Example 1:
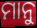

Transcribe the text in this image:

ମାନୁ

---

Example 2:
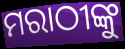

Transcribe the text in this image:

ମରାଠୀଙ୍କୁ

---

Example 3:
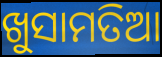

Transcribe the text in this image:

ଖୁସାମତିଆ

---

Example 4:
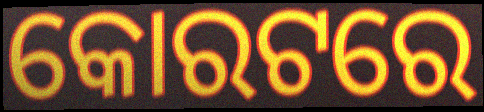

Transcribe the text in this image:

କୋରଟରେ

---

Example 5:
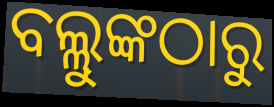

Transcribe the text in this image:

ବଲ୍ଲୁଙ୍କଠାରୁ